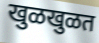
खुळखुळत